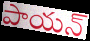
పాయన్